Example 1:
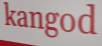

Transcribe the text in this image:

kangod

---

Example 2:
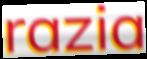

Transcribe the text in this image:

razia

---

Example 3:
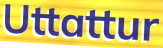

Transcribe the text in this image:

Uttattur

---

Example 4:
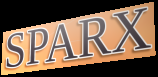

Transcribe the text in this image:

SPARX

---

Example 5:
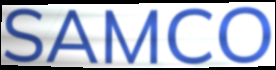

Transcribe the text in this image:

SAMCO